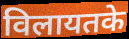
विलायतके